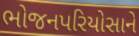
ભોજનપરિયોસાને